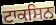
ਟਾਕਸਿਨ